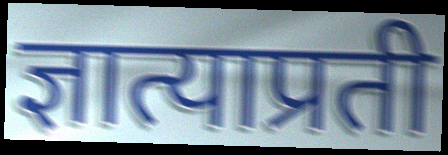
ज्ञात्याप्रती